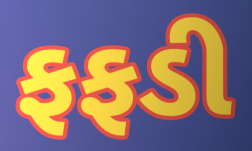
ફફડી